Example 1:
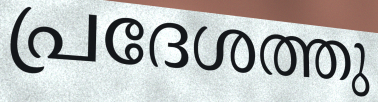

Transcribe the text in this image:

പ്രദേശത്തു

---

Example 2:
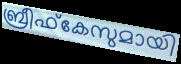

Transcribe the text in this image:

ബ്രീഫ്കേസുമായി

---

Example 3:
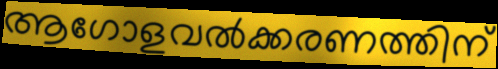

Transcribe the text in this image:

ആഗോളവൽക്കരണത്തിന്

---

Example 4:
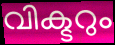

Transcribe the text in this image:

വിക്ടറും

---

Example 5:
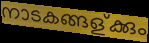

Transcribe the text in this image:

നാടകങ്ങള്ക്കും